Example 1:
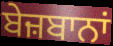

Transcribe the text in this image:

ਬੇਜ਼ਬਾਨਾਂ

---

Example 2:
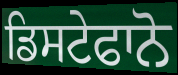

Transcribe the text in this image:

ਡਿਸਟੇਫਾਨੋ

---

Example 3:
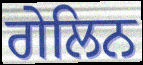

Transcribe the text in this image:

ਗੇਲਿਨ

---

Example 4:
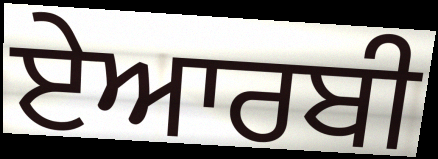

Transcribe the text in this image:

ਏਆਰਬੀ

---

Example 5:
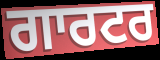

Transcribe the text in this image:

ਗਾਰਟਰ